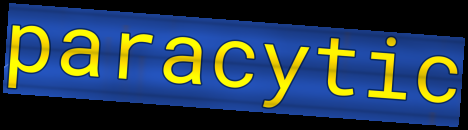
paracytic